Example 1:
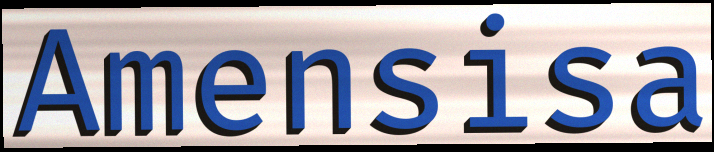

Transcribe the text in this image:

Amensisa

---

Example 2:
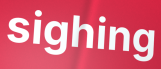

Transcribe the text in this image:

sighing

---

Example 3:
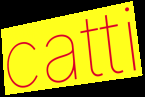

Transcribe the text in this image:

catti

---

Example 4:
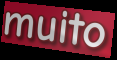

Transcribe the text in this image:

muito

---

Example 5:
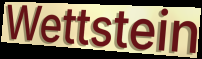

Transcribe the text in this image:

Wettstein